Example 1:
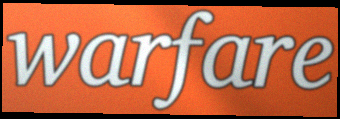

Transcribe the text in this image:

warfare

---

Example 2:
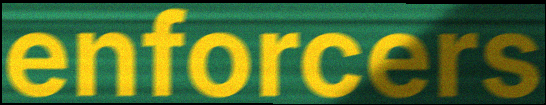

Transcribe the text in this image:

enforcers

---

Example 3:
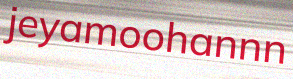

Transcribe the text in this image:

jeyamoohannn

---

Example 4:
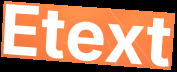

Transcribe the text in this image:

Etext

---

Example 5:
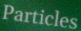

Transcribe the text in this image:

Particles